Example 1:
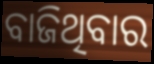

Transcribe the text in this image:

ବାଜିଥିବାର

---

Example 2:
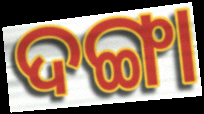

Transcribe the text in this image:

ଦଙ୍ଗା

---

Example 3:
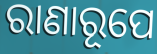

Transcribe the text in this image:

ରାଣାରୂପେ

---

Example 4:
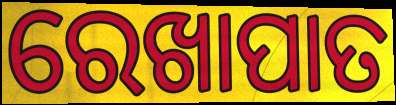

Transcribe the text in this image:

ରେଖାପାତ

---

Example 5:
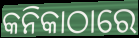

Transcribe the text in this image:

କନିକାଠାରେ